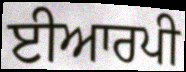
ਈਆਰਪੀ